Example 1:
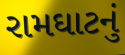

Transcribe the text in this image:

રામઘાટનું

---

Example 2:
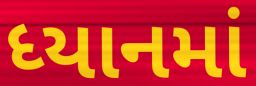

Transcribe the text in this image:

ધ્યાનમાં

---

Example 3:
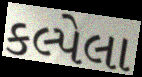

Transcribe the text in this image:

કલ્પેલા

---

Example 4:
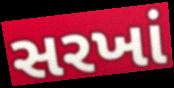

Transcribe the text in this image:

સરખાં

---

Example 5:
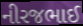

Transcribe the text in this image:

નીરજભાઈ